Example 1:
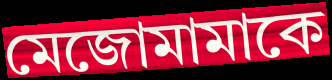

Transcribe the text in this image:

মেজোমামাকে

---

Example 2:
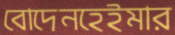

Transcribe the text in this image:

বোদেনহেইমার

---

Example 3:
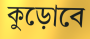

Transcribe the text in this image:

কুড়োবে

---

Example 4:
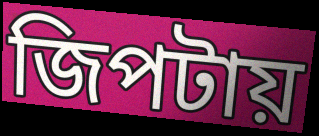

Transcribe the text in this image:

জিপটায়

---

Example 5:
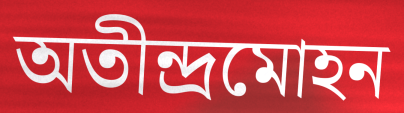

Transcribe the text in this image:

অতীন্দ্রমোহন